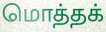
மொத்தக்